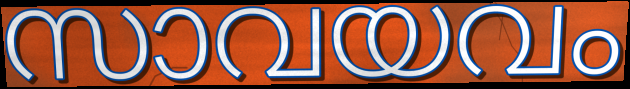
സാവയവം